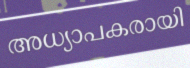
അധ്യാപകരായി